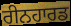
ਰੀਨਹਾਰਡ